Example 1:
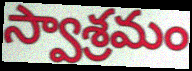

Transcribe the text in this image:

స్వాశ్రమం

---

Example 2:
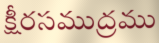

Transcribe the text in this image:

క్షీరసముద్రము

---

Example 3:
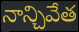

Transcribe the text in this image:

నాన్చివేత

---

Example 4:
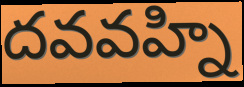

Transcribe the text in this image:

దవవహ్ని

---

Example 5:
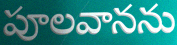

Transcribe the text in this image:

పూలవానను